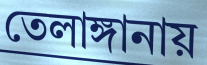
তেলাঙ্গানায়